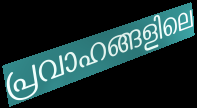
പ്രവാഹങ്ങളിലെ